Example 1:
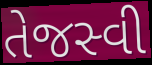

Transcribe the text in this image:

તેજસ્વી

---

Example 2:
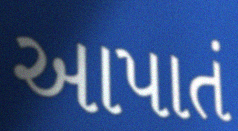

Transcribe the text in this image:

આપાતં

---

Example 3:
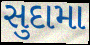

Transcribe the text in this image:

સુદામા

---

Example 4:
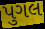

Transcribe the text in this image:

પુગલ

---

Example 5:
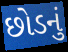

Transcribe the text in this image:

છોડનું